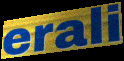
erali